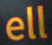
ell